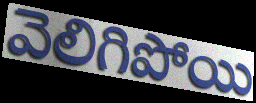
వెలిగిపోయి